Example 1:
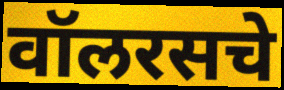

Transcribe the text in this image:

वॉलरसचे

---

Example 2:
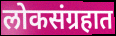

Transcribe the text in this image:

लोकसंग्रहात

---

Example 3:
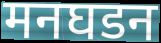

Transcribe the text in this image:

मनघडन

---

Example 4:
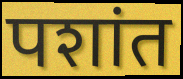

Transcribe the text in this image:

पशांत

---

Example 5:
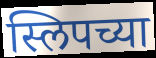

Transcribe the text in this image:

स्लिपच्या